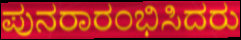
ಪುನರಾರಂಭಿಸಿದರು